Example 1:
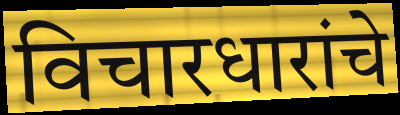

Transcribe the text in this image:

विचारधारांचे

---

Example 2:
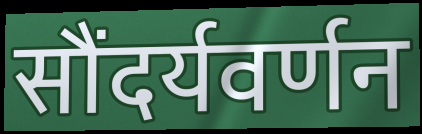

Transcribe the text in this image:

सौंदर्यवर्णन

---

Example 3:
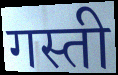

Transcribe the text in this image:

गस्ती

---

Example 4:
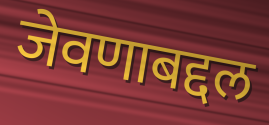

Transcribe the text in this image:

जेवणाबद्दल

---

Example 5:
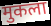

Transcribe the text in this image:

मुकला